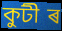
কুটীৰ